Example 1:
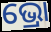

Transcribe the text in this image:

ଭ୍ରୋ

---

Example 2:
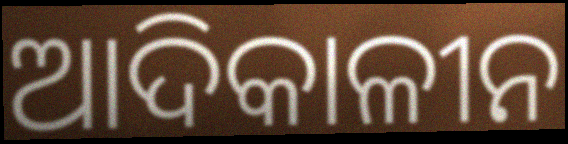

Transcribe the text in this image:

ଆଦିକାଳୀନ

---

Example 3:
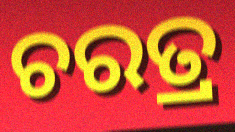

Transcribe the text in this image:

ଚରତ୍ର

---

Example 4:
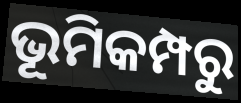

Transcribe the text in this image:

ଭୂମିକମ୍ପରୁ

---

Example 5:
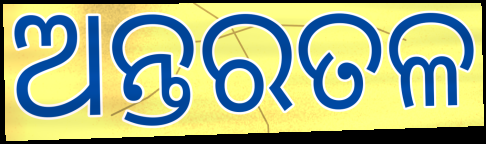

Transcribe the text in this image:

ଅନ୍ତରତଳ